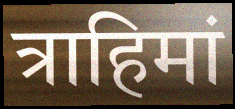
त्राहिमां